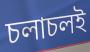
চলাচলই